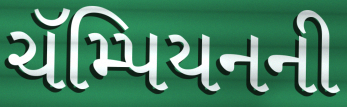
ચૅમ્પિયનની